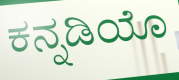
ಕನ್ನಡಿಯೊ